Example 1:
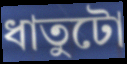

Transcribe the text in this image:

ধাতুটো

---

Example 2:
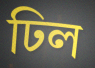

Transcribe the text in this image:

ঢিল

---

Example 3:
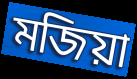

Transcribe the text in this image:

মজিয়া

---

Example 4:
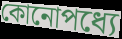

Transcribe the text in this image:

কোনোপধ্যে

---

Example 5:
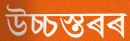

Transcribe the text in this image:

উচ্চস্তৰৰ